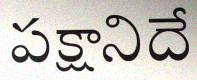
పక్షానిదే